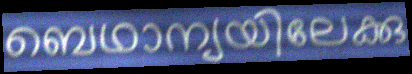
ബെഥാന്യയിലേക്കു